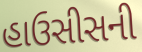
હાઉસીસની